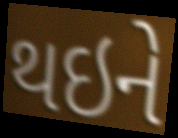
થઇને